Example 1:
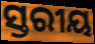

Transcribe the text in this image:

ସ୍ତରୀୟ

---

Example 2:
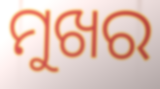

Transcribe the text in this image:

ମୁଖର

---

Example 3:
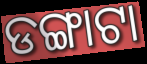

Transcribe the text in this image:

ଡଙ୍ଗାଟା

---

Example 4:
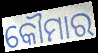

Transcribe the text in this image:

କୌମାର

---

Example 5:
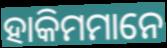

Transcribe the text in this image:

ହାକିମମାନେ